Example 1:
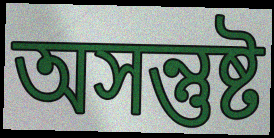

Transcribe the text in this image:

অসন্তুষ্ট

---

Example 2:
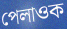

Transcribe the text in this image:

পেলাওক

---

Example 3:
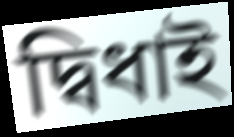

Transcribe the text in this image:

দ্বিধাই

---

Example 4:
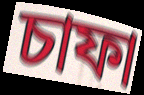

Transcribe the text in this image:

চাফা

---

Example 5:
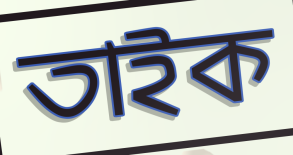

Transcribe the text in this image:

তাইক